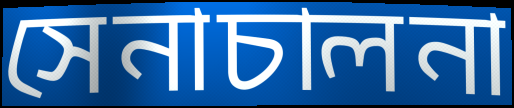
সেনাচালনা